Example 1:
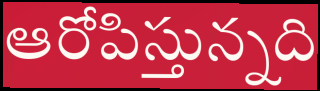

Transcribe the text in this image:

ఆరోపిస్తున్నది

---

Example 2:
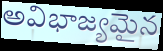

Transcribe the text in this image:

అవిభాజ్యమైన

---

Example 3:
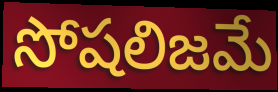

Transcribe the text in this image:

సోషలిజమే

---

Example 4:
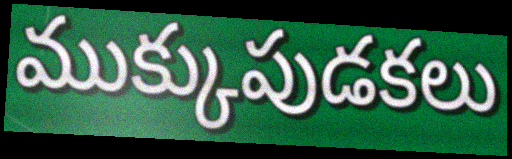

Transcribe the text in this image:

ముక్కుపుడకలు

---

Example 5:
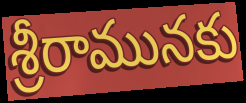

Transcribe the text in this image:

శ్రీరామునకు